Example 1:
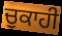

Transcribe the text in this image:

ਚੁਕਾਹੀ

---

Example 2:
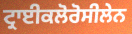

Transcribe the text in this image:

ਟ੍ਰਾਈਕਲੋਰੋਸੀਲੇਨ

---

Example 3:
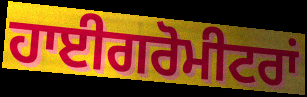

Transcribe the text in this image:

ਹਾਈਗਰੋਮੀਟਰਾਂ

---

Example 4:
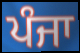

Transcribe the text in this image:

ਪੰਜਾ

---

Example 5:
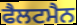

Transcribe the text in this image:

ਫੈਲਟਮੈਨ